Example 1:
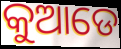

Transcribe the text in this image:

କୁଆଡେ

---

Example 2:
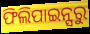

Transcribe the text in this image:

ଫିଲିପାଇନ୍ସରୁ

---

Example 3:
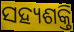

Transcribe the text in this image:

ସହ୍ୟଶକ୍ତି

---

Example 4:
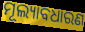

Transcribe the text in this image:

ମୂଲ୍ୟାବଧାରଣ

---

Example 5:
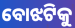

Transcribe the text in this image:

ବୋଝଟିକୁ